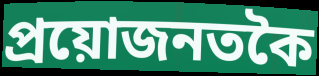
প্ৰয়োজনতকৈ